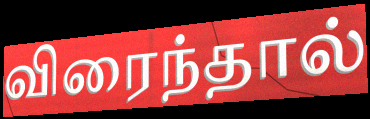
விரைந்தால்